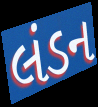
લંડન